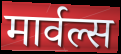
मार्वल्स